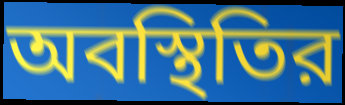
অবস্থিতির